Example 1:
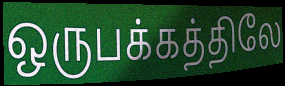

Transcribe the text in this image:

ஒருபக்கத்திலே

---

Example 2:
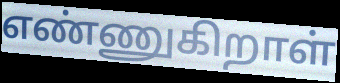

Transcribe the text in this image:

எண்ணுகிறாள்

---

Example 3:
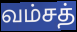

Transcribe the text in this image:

வம்சத்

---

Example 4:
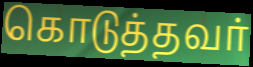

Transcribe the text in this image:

கொடுத்தவர்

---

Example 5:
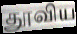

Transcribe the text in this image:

தூவிய